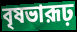
বৃষভারূঢ়